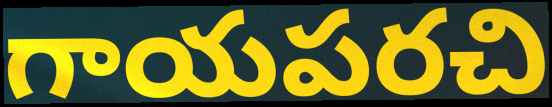
గాయపరచి